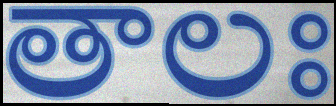
తాలః